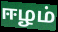
ஈழம்